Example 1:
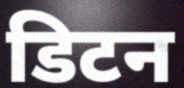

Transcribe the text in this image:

डिटन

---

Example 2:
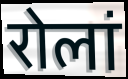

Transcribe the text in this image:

रोलां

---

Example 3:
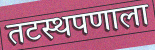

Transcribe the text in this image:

तटस्थपणाला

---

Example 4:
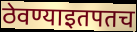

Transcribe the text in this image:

ठेवण्याइतपतच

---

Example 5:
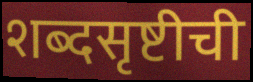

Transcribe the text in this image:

शब्दसृष्टीची